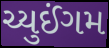
ચ્યુઈંગમ